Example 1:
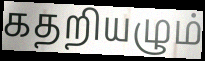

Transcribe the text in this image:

கதறியழும்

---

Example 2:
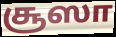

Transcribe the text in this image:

சூஸா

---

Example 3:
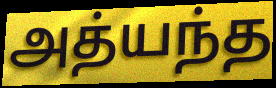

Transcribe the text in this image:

அத்யந்த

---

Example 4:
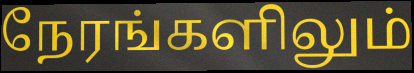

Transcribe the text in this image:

நேரங்களிலும்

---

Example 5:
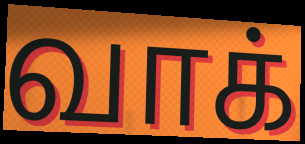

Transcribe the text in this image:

வாக்